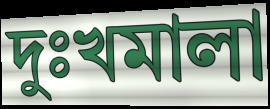
দুঃখমালা